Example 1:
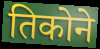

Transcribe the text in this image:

तिकोने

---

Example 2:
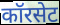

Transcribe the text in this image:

कॉरसेट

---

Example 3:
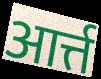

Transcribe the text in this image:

आर्त्त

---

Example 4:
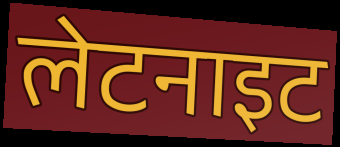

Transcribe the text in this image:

लेटनाइट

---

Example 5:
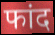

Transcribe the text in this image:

फांद